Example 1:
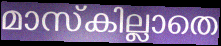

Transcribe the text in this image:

മാസ്‌കില്ലാതെ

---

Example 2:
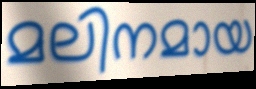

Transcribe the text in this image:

മലിനമായ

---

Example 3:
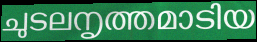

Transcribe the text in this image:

ചുടലനൃത്തമാടിയ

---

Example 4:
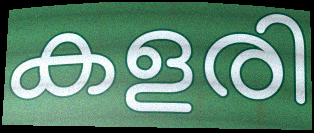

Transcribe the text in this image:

കളരി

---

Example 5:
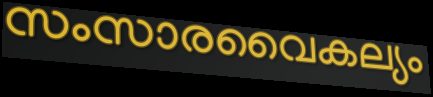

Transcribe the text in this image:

സംസാരവൈകല്യം